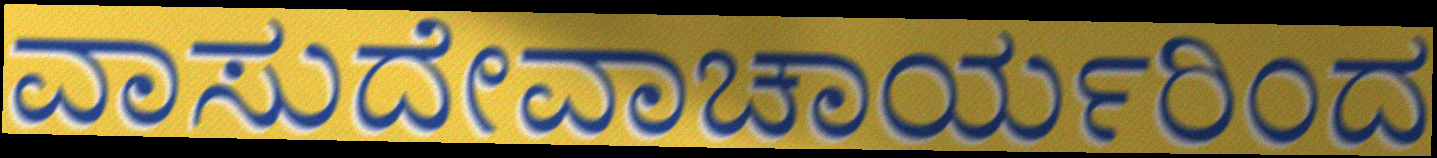
ವಾಸುದೇವಾಚಾರ್ಯರಿಂದ